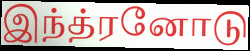
இந்த்ரனோடு